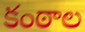
కంఠాల